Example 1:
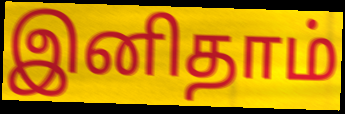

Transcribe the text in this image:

இனிதாம்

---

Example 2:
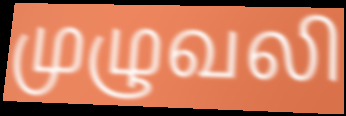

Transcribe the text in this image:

முழுவலி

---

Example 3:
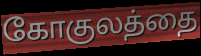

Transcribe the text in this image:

கோகுலத்தை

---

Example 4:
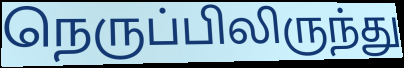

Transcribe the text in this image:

நெருப்பிலிருந்து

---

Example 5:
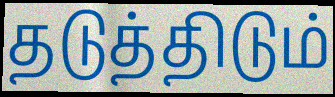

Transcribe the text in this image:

தடுத்திடும்